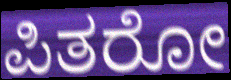
ಪಿತರೋ